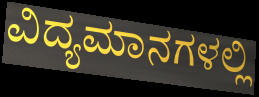
ವಿದ್ಯಮಾನಗಳಲ್ಲಿ